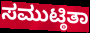
ಸಮುಟ್ಠಿತಾ